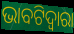
ଭାବଟିଦ୍ୱାରା